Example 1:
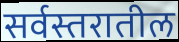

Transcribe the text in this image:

सर्वस्तरातील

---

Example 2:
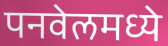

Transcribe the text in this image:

पनवेलमध्ये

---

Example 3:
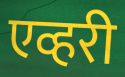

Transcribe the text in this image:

एव्हरी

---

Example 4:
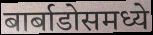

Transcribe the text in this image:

बार्बाडोसमध्ये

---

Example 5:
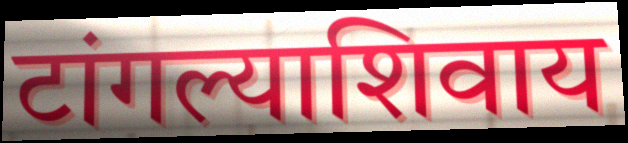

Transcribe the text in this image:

टांगल्याशिवाय